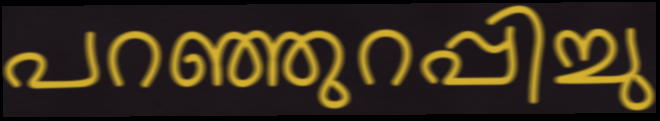
പറഞ്ഞുറപ്പിച്ചു